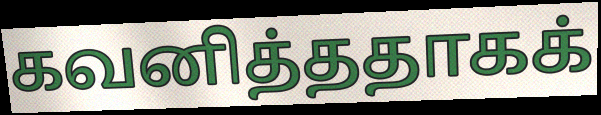
கவனித்ததாகக்